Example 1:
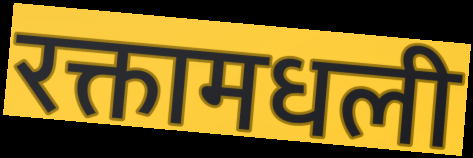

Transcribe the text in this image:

रक्तामधली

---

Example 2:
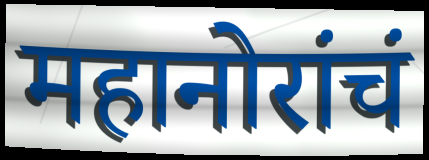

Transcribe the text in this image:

महानोरांचं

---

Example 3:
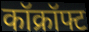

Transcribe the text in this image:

कॉक्रॉफ्ट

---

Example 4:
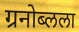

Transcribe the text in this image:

ग्रनोब्लला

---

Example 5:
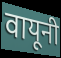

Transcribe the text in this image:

वायूनी